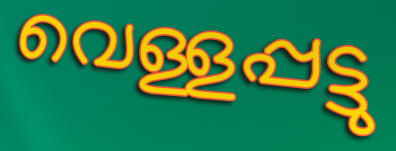
വെള്ളപ്പട്ടു